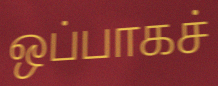
ஒப்பாகச்